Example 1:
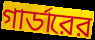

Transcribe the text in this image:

গার্ডারের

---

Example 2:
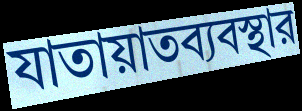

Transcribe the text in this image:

যাতায়াতব্যবস্থার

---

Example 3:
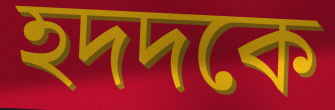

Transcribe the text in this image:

হদদকে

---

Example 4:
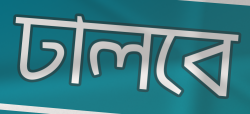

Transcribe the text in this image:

ঢালবে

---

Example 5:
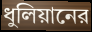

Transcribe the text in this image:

ধুলিয়ানের